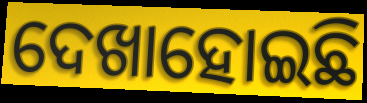
ଦେଖାହୋଇଛି